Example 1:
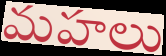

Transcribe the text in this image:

మహలు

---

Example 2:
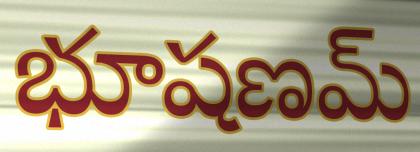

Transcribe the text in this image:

భూషణమ్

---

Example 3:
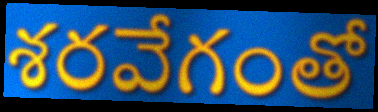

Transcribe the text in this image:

శరవేగంతో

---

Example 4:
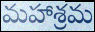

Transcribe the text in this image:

మహాశ్రమ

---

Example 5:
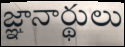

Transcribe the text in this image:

జ్ఞానార్థులు